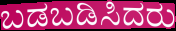
ಬಡಬಡಿಸಿದರು